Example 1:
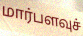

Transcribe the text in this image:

மார்பளவுச்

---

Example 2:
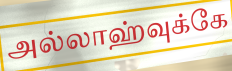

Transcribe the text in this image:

அல்லாஹ்வுக்கே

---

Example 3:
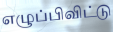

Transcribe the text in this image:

எழுப்பிவிட்டு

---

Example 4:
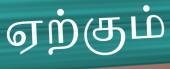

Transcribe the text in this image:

ஏற்கும்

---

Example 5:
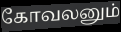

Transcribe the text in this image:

கோவலனும்